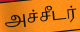
அச்சீடர்